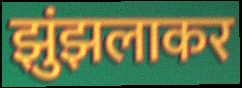
झुंझलाकर